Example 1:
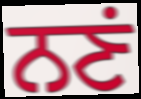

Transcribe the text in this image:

ਨਣਂ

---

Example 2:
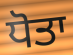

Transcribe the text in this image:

ਧੋਤਾ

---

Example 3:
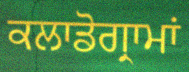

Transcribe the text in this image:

ਕਲਾਡੋਗ੍ਰਾਮਾਂ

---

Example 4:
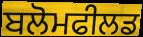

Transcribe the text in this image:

ਬਲੋਮਫੀਲਡ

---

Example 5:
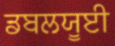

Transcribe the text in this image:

ਡਬਲਯੂਈ